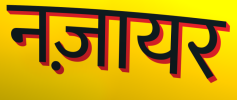
नज़ायर